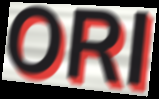
ORI